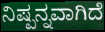
ನಿಷ್ಪನ್ನವಾಗಿದೆ